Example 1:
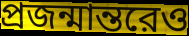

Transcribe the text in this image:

প্রজন্মান্তরেও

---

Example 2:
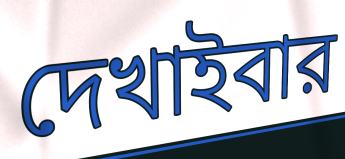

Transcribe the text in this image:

দেখাইবার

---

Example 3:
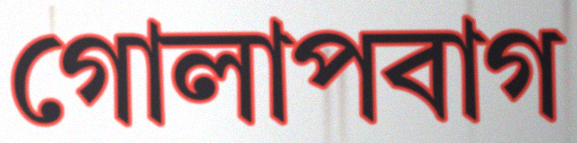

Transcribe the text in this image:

গোলাপবাগ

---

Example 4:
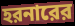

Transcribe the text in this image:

হরনারের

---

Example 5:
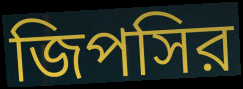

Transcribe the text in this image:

জিপসির